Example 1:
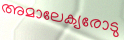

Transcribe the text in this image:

അമാലേക്യരോടു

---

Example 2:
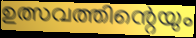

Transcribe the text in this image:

ഉത്സവത്തിന്റെയും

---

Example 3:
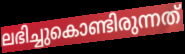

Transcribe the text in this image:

ലഭിച്ചുകൊണ്ടിരുന്നത്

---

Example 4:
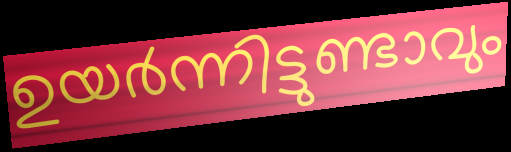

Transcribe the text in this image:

ഉയർന്നിട്ടുണ്ടാവും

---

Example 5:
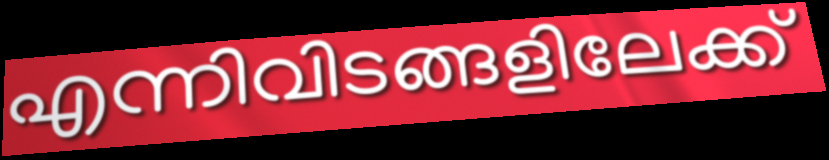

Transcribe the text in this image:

എന്നിവിടങ്ങളിലേക്ക്